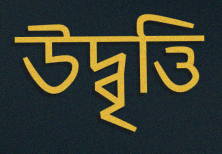
উদ্বৃত্তি